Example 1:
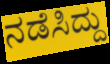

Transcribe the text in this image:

ನಡೆಸಿದ್ದು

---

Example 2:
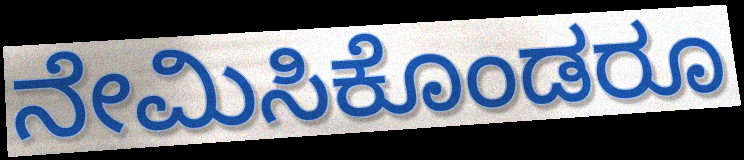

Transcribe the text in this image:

ನೇಮಿಸಿಕೊಂಡರೂ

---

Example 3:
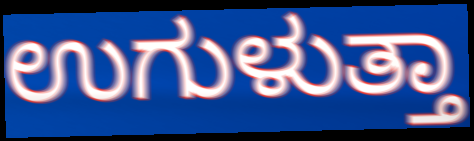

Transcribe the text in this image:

ಉಗುಳುತ್ತಾ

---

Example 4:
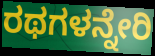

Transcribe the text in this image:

ರಥಗಳನ್ನೇರಿ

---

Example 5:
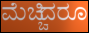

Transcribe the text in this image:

ಮೆಚ್ಚಿದರೂ